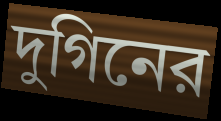
দুগিনের